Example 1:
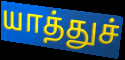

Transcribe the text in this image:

யாத்துச்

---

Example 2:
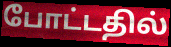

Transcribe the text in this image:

போட்டதில்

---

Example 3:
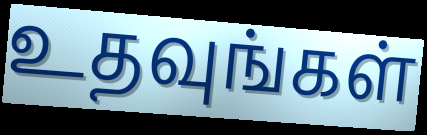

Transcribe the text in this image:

உதவுங்கள்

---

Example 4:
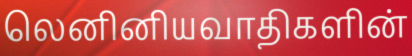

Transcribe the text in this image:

லெனினியவாதிகளின்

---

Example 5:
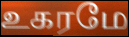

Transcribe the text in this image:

உகரமே